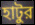
হাটুর